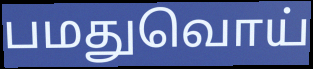
பமதுவொய்